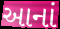
આનાં